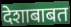
देशाबाबत